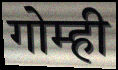
गोम्ही